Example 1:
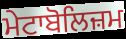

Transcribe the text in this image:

ਮੇਟਾਬੋਲਿਜ਼ਮ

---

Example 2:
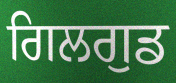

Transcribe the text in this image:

ਗਿਲਗੁਡ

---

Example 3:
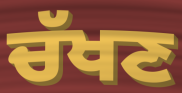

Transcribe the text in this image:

ਚੱਖਣ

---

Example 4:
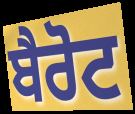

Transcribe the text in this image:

ਬੈਰੋਟ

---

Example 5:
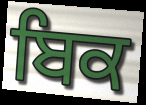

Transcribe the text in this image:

ਬਿਕ